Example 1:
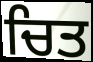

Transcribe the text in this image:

ਚਿਤ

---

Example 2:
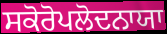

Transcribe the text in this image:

ਸਕੋਰੋਪਲੋਦਨਾਯਾ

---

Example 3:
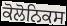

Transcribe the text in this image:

ਕੋਲੋਨਿਕਸ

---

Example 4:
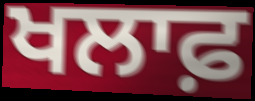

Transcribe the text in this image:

ਖਲਾਫ਼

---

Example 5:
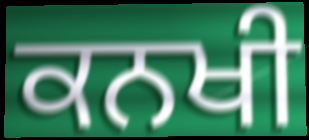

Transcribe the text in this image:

ਕਨਖੀ